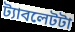
ট্যাবলেটটা